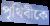
পৃথিবীকে